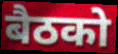
बैठको